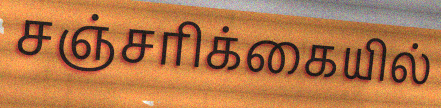
சஞ்சரிக்கையில்